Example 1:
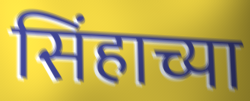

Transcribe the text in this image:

सिंहाच्या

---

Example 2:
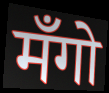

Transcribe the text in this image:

मँगो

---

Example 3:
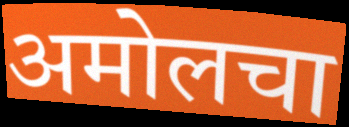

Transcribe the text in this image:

अमोलचा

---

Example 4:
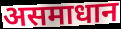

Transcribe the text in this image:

असमाधान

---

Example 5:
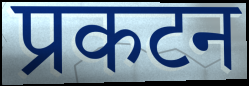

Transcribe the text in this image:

प्रकटन